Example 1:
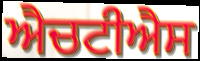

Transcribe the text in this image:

ਐਚਟੀਐਸ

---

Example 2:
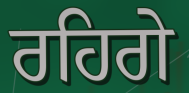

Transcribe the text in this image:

ਰਹਿਗੇ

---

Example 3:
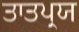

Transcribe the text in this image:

ਤਾਤਪ੍ਰਯ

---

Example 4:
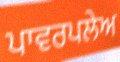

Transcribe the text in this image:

ਪਾਵਰਪਲੇਅ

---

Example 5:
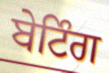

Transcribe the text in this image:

ਬੇਟਿੰਗ